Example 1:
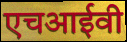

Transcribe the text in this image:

एचआईवी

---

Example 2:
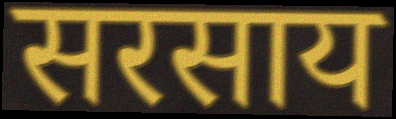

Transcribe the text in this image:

सरसाय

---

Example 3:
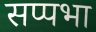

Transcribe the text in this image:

सप्पभा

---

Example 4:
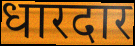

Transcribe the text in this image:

धारदार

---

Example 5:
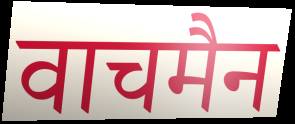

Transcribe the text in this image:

वाचमैन